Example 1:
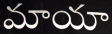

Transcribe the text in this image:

మాయా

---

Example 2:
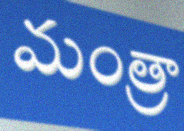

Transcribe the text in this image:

మంత్రా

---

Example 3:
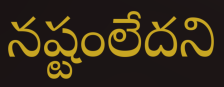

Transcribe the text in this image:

నష్టంలేదని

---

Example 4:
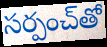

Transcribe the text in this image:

సర్పంచ్‌తో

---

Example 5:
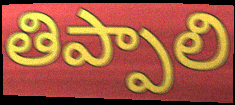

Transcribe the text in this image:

తిప్పాలి